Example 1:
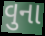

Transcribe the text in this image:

વુના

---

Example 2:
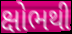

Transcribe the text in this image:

ક્ષોભથી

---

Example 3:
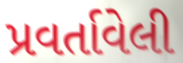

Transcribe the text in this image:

પ્રવર્તાવેલી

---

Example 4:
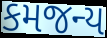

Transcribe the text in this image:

કમજન્ય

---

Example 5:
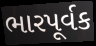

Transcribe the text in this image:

ભારપૂર્વક